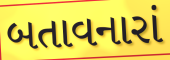
બતાવનારાં